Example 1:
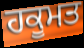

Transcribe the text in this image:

ਹਕੂਮਤ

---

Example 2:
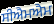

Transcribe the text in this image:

ਸੀਐਮਐਮ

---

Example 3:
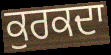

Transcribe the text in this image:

ਕੁਰਕਦਾ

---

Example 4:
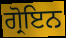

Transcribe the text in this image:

ਗ੍ਰੋਇਨ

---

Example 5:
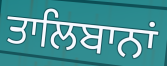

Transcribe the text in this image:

ਤਾਲਿਬਾਨਾਂ